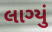
લાગ્યું